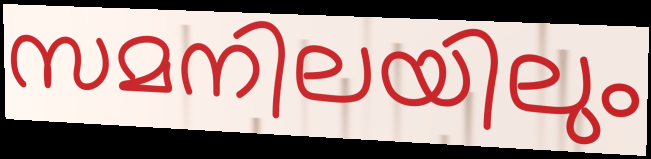
സമനിലയിലും